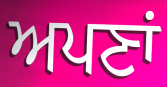
ਅਪਣਾਂ